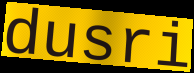
dusri